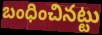
బంధించినట్టు